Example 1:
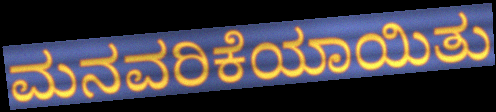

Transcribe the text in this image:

ಮನವರಿಕೆಯಾಯಿತು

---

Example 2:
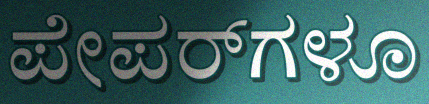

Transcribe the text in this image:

ಪೇಪರ್‌ಗಳೂ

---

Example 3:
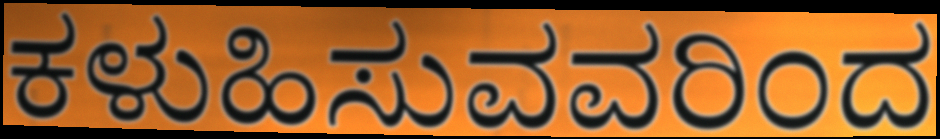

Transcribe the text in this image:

ಕಳುಹಿಸುವವರಿಂದ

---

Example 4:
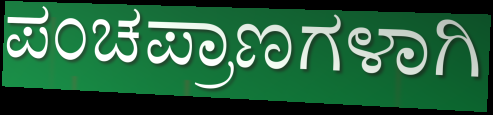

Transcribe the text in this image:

ಪಂಚಪ್ರಾಣಗಳಾಗಿ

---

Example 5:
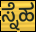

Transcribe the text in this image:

ಸ್ನೆಹ